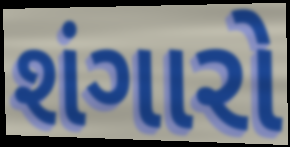
શંગારો